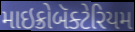
માઇક્રોબૅક્ટેરિયમ